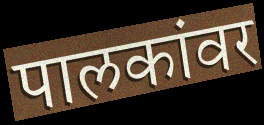
पालकांवर